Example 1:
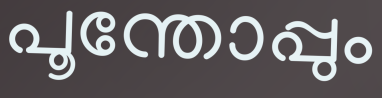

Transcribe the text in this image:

പൂന്തോപ്പും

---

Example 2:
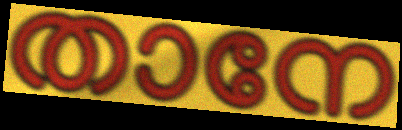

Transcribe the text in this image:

താനേ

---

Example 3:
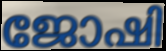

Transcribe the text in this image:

ജോഷി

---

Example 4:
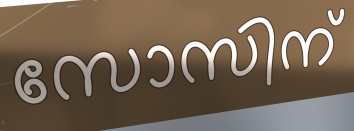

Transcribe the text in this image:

സോസിന്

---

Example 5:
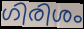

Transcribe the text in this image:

ഗിരിശം